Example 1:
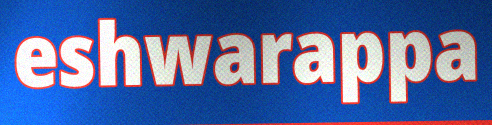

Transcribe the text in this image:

eshwarappa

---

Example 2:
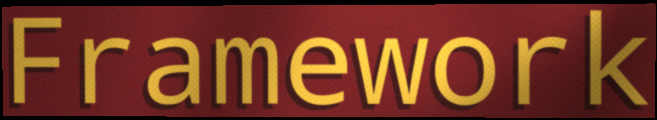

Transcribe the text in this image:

Framework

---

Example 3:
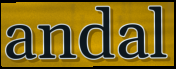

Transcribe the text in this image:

andal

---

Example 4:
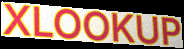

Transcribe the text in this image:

XLOOKUP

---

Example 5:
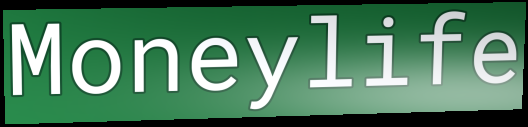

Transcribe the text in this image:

Moneylife